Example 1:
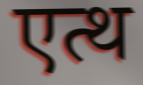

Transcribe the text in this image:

एत्थ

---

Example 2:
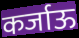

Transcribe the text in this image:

कर्जाऊ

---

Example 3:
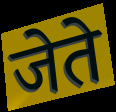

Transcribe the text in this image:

जेते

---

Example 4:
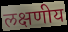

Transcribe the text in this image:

लक्षणीय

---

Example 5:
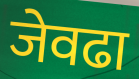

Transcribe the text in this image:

जेवढा